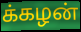
க்கழன்